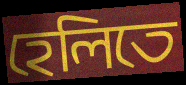
হেলিতে